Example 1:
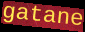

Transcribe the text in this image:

gatane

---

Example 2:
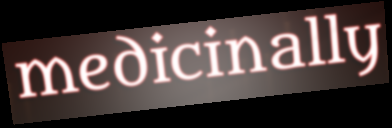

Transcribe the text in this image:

medicinally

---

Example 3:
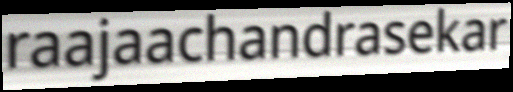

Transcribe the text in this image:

raajaachandrasekar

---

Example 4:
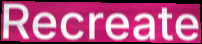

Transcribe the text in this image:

Recreate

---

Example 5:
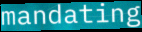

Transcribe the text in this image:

mandating